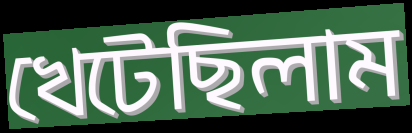
খেটেছিলাম